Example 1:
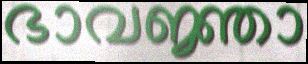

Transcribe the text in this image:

ഭാവജ്ഞാ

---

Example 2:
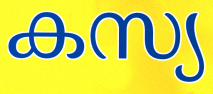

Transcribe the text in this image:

കസ്യ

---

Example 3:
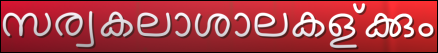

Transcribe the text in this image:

സര്വകലാശാലകള്ക്കും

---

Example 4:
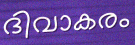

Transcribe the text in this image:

ദിവാകരം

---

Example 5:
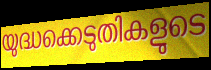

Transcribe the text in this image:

യുദ്ധക്കെടുതികളുടെ